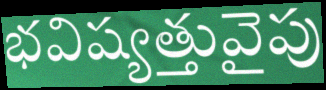
భవిష్యత్తువైపు